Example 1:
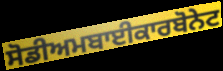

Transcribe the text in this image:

ਸੋਡੀਅਮਬਾਈਕਾਰਬੋਨੇਟ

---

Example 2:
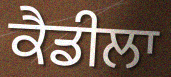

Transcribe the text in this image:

ਕੈਡੀਲਾ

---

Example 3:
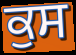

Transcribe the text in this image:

ਕੁਸ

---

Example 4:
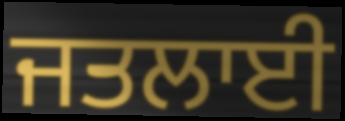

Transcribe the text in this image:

ਜਤਲਾਈ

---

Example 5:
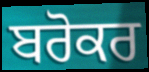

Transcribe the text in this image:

ਬਰੋਕਰ